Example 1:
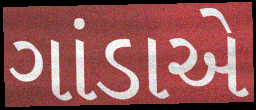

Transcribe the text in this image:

ગાંડાએ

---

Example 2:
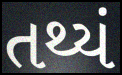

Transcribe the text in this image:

તથ્યં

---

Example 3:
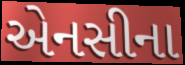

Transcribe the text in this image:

એનસીના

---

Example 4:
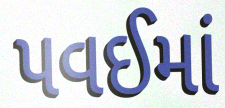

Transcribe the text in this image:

પવઈમાં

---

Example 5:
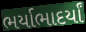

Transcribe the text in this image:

ભર્યાભાદર્યાં